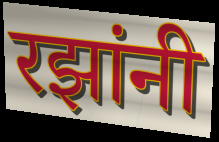
रझांनी